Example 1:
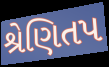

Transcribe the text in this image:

શ્રેણિતપ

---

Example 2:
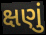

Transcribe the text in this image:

ક્ષણું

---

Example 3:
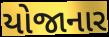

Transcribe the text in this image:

યોજાનાર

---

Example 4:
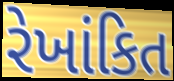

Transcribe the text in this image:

રેખાંકિત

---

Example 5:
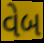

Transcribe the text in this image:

વેબ